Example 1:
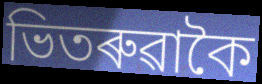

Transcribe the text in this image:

ভিতৰুৱাকৈ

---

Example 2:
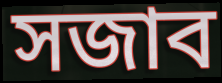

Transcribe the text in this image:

সজাব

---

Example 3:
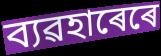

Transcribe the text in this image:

ব্যৱহাৰেৰে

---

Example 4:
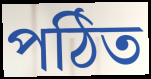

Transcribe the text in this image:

পঠিত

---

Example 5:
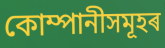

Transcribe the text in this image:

কোম্পানীসমূহৰ